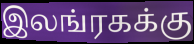
இலங்ரகக்கு